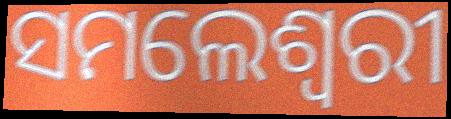
ସମଲେଶ୍ୱରୀ